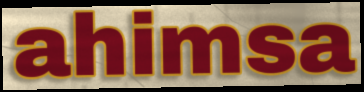
ahimsa